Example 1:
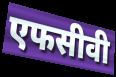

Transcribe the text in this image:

एफसीवी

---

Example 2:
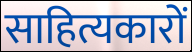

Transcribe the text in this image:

साहित्यकारों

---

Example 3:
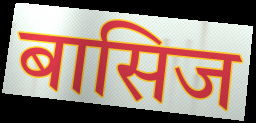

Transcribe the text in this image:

बासिज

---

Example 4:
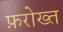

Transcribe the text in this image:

फ़रोख्त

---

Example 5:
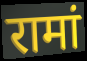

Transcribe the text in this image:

रामां